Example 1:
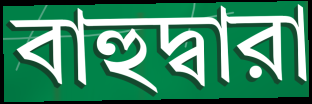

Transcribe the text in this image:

বাহুদ্বারা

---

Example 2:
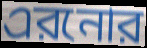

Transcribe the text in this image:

এরনোর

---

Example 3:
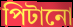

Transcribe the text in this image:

পিটানো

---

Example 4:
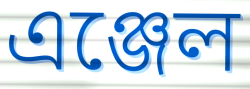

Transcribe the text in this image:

এঞ্জেল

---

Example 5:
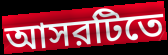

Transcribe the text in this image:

আসরটিতে